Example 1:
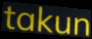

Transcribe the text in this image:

takun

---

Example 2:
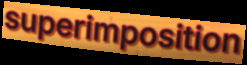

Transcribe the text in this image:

superimposition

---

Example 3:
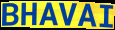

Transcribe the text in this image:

BHAVAI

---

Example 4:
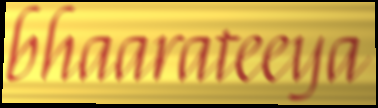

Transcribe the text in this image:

bhaarateeya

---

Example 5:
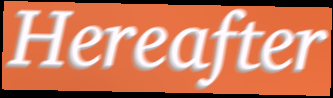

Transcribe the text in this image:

Hereafter